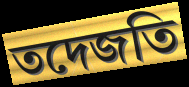
তদেজতি